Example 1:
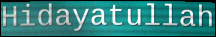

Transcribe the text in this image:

Hidayatullah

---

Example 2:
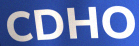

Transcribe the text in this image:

CDHO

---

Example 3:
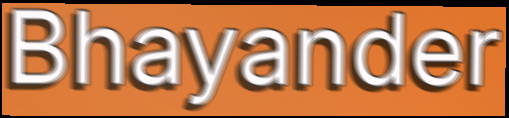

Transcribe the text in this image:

Bhayander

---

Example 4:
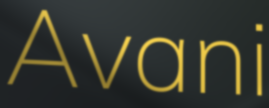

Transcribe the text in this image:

Avani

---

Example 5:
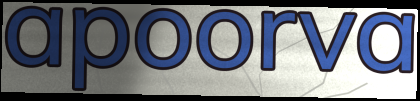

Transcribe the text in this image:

apoorva